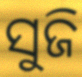
ସୁଜି